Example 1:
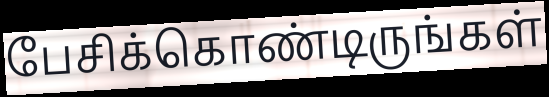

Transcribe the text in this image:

பேசிக்கொண்டிருங்கள்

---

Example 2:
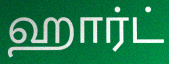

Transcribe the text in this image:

ஹார்ட்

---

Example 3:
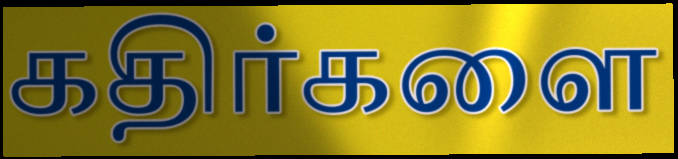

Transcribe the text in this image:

கதிர்களை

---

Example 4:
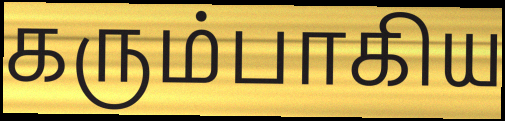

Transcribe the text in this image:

கரும்பாகிய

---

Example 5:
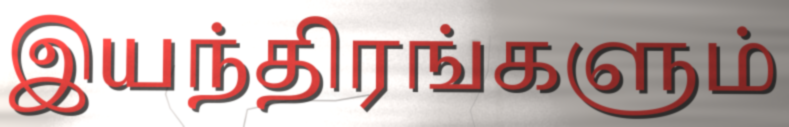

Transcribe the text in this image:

இயந்திரங்களும்